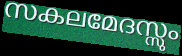
സകലമേദസ്സും